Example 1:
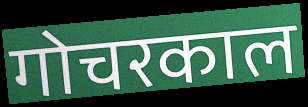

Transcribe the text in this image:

गोचरकाल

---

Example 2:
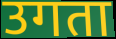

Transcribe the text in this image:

उगता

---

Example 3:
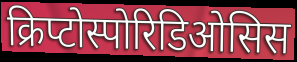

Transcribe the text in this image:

क्रिप्टोस्पोरिडिओसिस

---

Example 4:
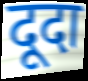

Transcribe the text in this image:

दूदा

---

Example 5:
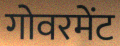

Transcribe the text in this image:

गोवरमेंट